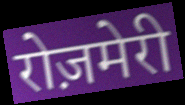
रोज़मेरी